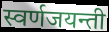
स्वर्णजयन्ती